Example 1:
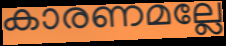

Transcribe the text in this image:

കാരണമല്ലേ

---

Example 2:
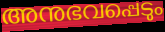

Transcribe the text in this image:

അനുഭവപ്പെടും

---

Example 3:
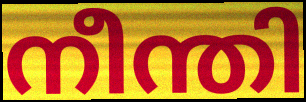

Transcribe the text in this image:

നീന്തി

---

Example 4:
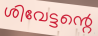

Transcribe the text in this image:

ശിവേട്ടന്റെ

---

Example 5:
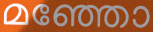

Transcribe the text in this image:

മഞ്ഞോ